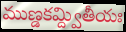
ముణ్డకమ్ద్వితీయః